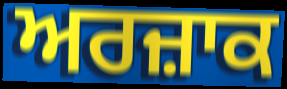
ਅਰਜ਼ਾਕ